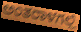
ಅಂತರಾಳಗಲ್ಲಿ